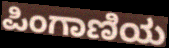
ಪಿಂಗಾಣಿಯ